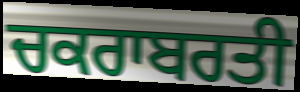
ਚਕਰਾਬਰਤੀ